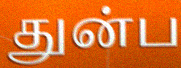
துன்ப